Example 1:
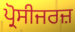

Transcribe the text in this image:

ਪ੍ਰੋਸੀਜਰਜ਼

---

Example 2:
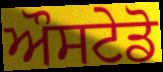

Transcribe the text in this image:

ਔਸਟੇਡੋ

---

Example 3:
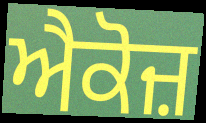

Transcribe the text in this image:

ਐਕੋਜ਼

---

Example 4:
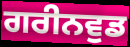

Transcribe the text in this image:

ਗਰੀਨਵੁਡ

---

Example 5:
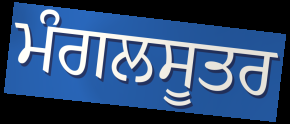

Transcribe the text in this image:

ਮੰਗਲਸੂਤਰ